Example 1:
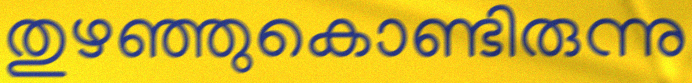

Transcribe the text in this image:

തുഴഞ്ഞുകൊണ്ടിരുന്നു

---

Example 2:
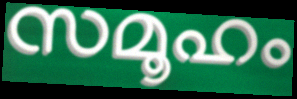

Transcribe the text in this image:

സമൂഹം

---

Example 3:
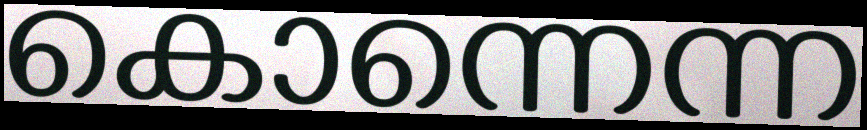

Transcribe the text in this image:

കൊന്നെന്ന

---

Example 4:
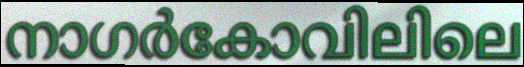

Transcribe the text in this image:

നാഗർകോവിലിലെ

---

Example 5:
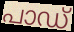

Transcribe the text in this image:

പാഡ്